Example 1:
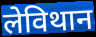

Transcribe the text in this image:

लेविथान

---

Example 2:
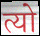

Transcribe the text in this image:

त्यो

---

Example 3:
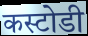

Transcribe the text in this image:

कस्टोडी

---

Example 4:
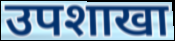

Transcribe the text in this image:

उपशाखा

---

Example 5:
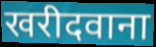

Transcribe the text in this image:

खरीदवाना